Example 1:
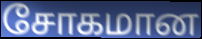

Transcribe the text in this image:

சோகமான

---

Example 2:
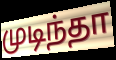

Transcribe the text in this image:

முடிந்தா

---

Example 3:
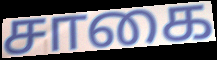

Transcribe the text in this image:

சாகை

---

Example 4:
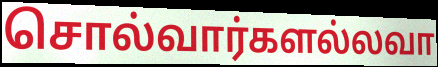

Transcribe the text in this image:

சொல்வார்களல்லவா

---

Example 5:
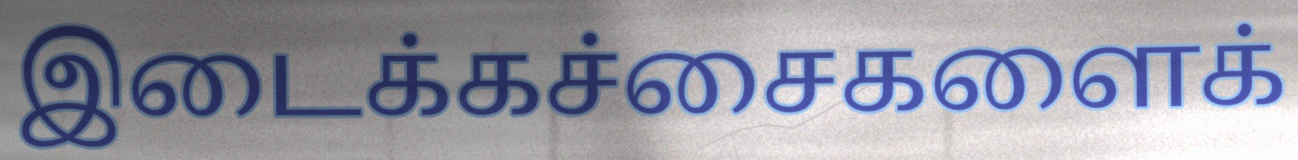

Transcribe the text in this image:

இடைக்கச்சைகளைக்